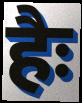
हैः